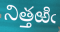
నిత్తఱిఁ